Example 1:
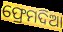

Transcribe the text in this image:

ଫ୍ରେମଦିଆ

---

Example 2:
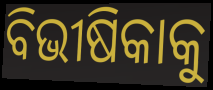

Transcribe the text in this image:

ବିଭୀଷିକାକୁ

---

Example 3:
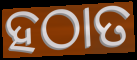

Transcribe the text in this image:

ହଠାତ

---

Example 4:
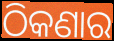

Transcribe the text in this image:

ଠିକଣାର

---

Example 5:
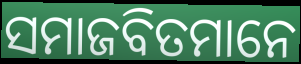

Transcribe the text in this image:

ସମାଜବିତମାନେ